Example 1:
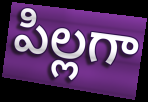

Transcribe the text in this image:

పిల్లగా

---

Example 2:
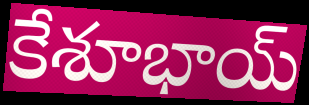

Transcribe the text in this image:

కేశూభాయ్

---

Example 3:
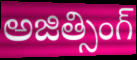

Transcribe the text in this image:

అజిత్సింగ్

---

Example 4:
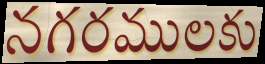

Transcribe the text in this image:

నగరములకు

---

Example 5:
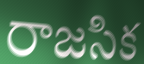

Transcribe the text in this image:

రాజసిక